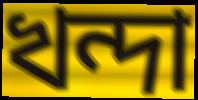
খন্দা